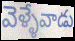
వెళ్ళేవాడు